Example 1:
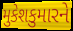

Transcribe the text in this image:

મુકેશકુમારને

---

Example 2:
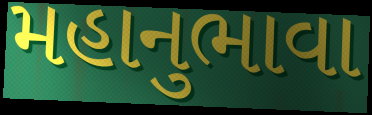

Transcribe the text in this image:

મહાનુભાવા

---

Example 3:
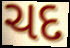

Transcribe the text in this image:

ચદ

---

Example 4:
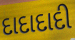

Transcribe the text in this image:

દાદાદાદી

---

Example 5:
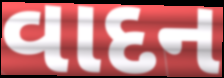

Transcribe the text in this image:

વાદન